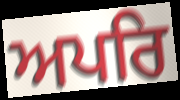
ਅਪਰਿ